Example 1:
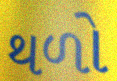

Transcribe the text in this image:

થળો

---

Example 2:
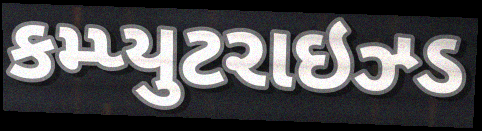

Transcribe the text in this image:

કમ્પ્યુટરાઇઝ્ડ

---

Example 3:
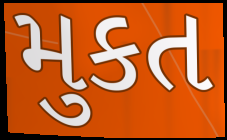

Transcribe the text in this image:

મુકત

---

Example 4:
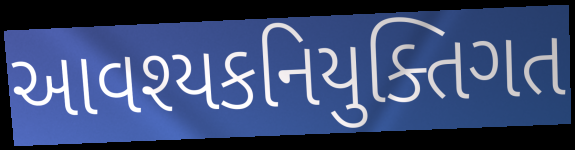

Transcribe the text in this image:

આવશ્યકનિયુક્તિગત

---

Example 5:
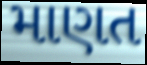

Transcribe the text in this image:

માણત